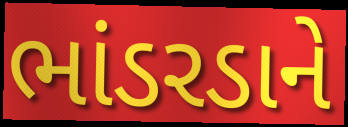
ભાંડરડાને